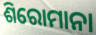
ଶିରୋମାନା